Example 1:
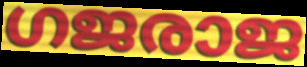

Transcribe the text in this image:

ഗജരാജ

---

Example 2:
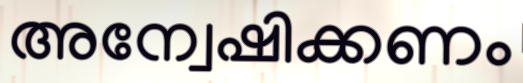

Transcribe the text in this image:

അന്വേഷിക്കണം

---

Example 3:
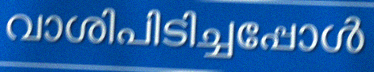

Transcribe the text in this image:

വാശിപിടിച്ചപ്പോൾ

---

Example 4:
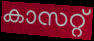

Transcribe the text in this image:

കാസറ്റ്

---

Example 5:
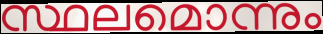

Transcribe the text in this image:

സ്ഥലമൊന്നും